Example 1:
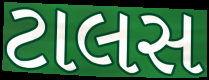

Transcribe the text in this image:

ટાલસ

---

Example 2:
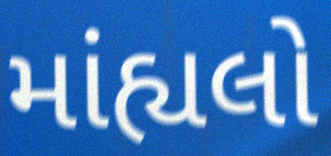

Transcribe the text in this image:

માંહ્યલો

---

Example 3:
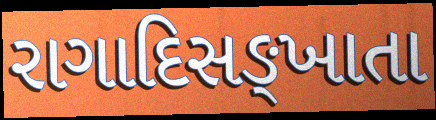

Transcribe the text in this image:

રાગાદિસઙ્ખાતા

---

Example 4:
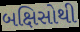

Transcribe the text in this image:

બક્ષિસોથી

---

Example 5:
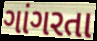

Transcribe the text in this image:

ગાંગરતા